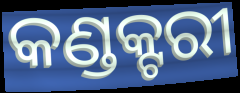
କଣ୍ଡକ୍ଟରୀ